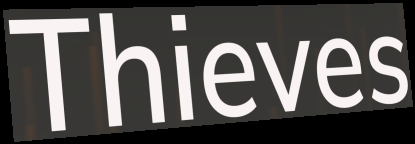
Thieves